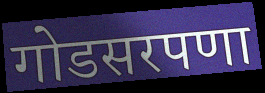
गोडसरपणा